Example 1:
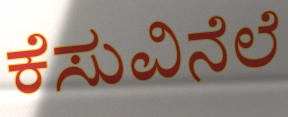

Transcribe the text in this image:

ಕೆಸುವಿನೆಲೆ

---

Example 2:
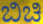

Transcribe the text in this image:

ಬಿಚಿ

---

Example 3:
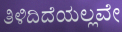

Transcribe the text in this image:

ತಿಳಿದಿದೆಯಲ್ಲವೇ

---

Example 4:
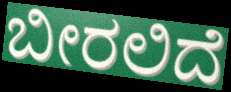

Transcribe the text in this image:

ಬೀರಲಿದೆ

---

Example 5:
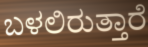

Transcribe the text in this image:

ಬಳಲಿರುತ್ತಾರೆ